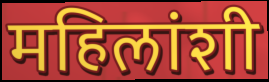
महिलांशी